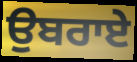
ਉਬਰਾਏ